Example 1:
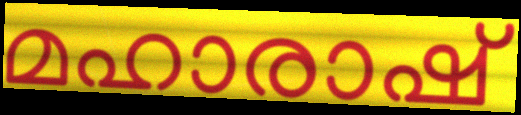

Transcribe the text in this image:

മഹാരാഷ്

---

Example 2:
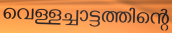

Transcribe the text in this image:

വെള്ളച്ചാട്ടത്തിന്റെ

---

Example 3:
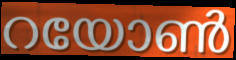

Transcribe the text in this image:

റയോൺ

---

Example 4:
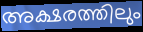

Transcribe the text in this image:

അക്ഷരത്തിലും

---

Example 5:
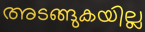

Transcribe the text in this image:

അടങ്ങുകയില്ല